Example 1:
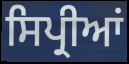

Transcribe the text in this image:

ਸਿਪ੍ਰੀਆਂ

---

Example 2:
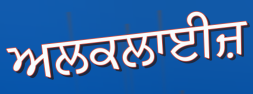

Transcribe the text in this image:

ਅਲਕਲਾਈਜ਼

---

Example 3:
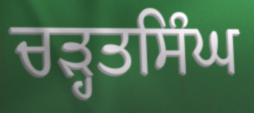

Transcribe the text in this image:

ਚੜ੍ਹਤਸਿੰਘ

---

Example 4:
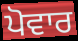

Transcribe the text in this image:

ਪੋਵਾਰ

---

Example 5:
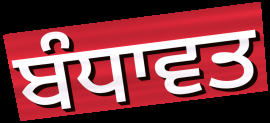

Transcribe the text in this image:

ਬੰਧਾਵਤ